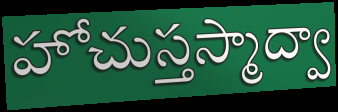
హోచుస్తస్మాద్వా